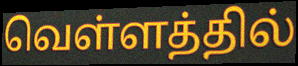
வெள்ளத்தில்